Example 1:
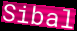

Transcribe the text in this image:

Sibal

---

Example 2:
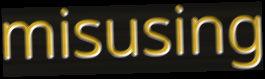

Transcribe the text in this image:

misusing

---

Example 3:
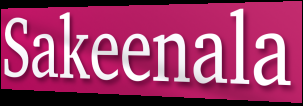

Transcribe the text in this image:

Sakeenala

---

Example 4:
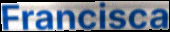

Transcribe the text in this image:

Francisca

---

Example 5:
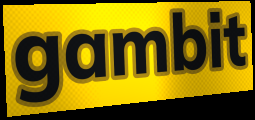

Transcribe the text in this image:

gambit